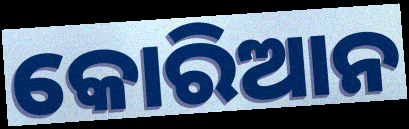
କୋରିଆନ